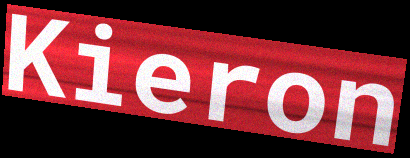
Kieron